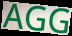
AGG